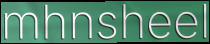
mhnsheel